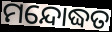
ମନ୍ଦୋଦ୍ଧତ